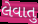
લેવાતુ